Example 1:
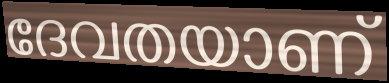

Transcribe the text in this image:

ദേവതയാണ്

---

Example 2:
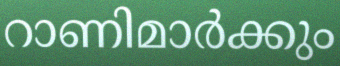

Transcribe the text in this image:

റാണിമാർക്കും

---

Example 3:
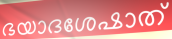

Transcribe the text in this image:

ഭയാദശേഷാത്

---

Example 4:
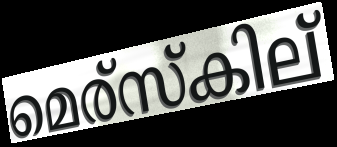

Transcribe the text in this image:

മെര്സ്കില്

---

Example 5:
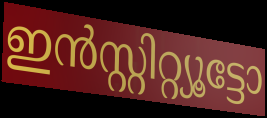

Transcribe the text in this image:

ഇൻസ്റ്റിറ്റ്യൂട്ടോ